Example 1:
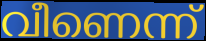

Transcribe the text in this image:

വീണെന്ന്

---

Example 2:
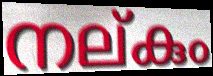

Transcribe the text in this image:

നല്‌കും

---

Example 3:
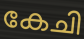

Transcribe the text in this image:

കേചി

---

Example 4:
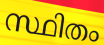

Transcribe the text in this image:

സ്ഥിതം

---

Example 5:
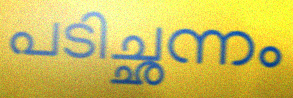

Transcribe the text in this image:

പടിച്ഛന്നം